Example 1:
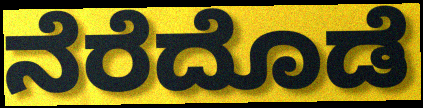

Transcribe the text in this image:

ನೆರೆದೊಡೆ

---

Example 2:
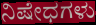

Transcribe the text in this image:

ನಿಷೇಧಗಳು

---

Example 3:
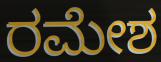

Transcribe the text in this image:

ರಮೇಶ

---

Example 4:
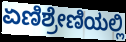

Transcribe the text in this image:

ಏಣಿಶ್ರೇಣಿಯಲ್ಲಿ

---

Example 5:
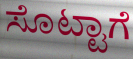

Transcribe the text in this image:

ಸೊಟ್ಟಾಗೆ